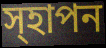
স্হাপন